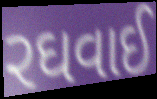
રઘવાઈ